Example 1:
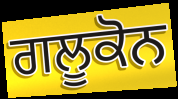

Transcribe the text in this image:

ਗਲੂਕੋਨ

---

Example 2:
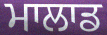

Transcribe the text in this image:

ਮਾਲਾਡ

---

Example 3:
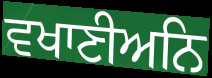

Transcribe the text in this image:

ਵਖਾਣੀਅਨਿ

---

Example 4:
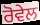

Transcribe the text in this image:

ਰੋਵੇਲ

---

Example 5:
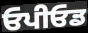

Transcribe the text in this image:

ਓਪੀਓਡ